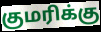
குமரிக்கு